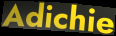
Adichie